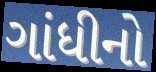
ગાંધીનો